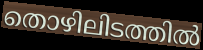
തൊഴിലിടത്തിൽ